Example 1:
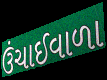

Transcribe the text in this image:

ઉંચાઈવાળા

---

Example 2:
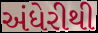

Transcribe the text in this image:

અંધેરીથી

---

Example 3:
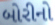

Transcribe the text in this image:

બોરીનો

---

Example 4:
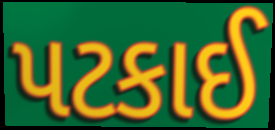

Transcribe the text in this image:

પટકાઈ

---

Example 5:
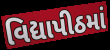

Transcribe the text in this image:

વિદ્યાપીઠમાં